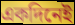
একদিনেই